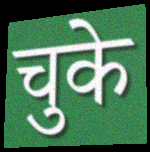
चुके